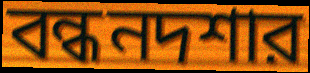
বন্ধনদশার